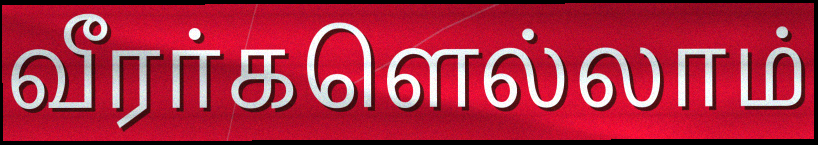
வீரர்களெல்லாம்